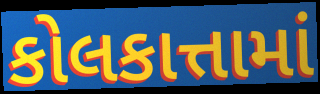
કોલકાત્તામાં